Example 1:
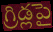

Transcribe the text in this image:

గ్రిడ్లపై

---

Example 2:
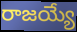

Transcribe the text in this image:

రాజయ్యే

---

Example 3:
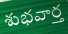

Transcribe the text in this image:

శుభవార్త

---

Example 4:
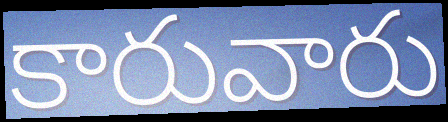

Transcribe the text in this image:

కారువారు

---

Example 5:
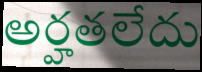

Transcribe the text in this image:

అర్హతలేదు